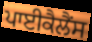
ਪਾਈਕੈਲੈਂਸ